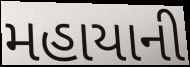
મહાયાની